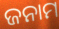
ଜନାମ